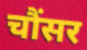
चौंसर